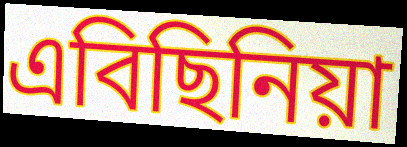
এবিছিনিয়া